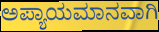
ಅಪ್ಯಾಯಮಾನವಾಗಿ